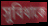
সুবিধাকে